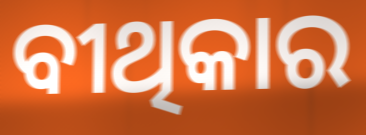
ବୀଥିକାର